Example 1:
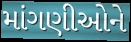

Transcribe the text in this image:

માંગણીઓને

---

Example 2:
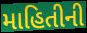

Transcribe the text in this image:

માહિતીની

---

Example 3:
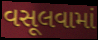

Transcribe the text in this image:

વસૂલવામાં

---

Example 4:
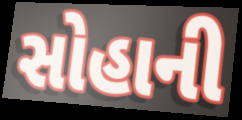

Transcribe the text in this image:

સોહાની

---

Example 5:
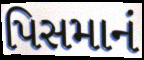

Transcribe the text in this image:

પિસમાનં